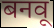
बनवू